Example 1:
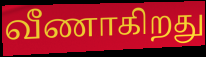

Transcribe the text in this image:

வீணாகிறது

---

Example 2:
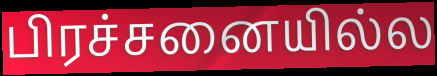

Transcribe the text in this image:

பிரச்சனையில்ல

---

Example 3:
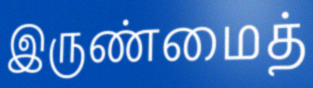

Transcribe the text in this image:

இருண்மைத்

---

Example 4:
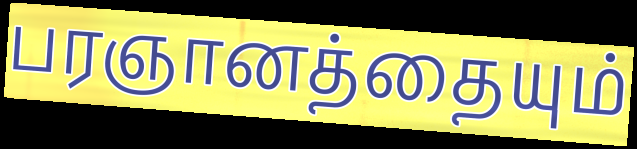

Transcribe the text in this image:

பரஞானத்தையும்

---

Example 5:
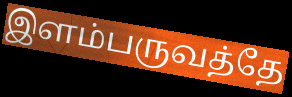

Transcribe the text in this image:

இளம்பருவத்தே